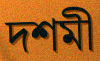
দশমী